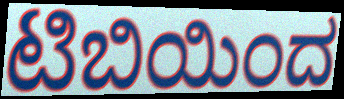
ಟಿಬಿಯಿಂದ